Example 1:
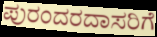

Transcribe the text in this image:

ಪುರಂದರದಾಸರಿಗೆ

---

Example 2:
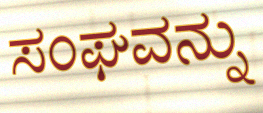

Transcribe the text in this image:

ಸಂಘವನ್ನು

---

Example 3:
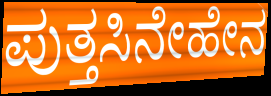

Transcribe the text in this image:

ಪುತ್ತಸಿನೇಹೇನ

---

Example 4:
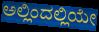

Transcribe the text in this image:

ಅಲ್ಲಿಂದಲ್ಲಿಯೇ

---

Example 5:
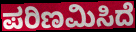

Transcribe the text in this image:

ಪರಿಣಮಿಸಿದೆ